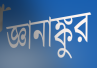
জ্ঞানাঙ্কুর